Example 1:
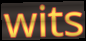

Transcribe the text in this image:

wits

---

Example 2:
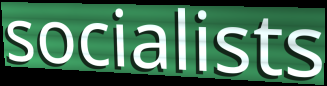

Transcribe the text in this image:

socialists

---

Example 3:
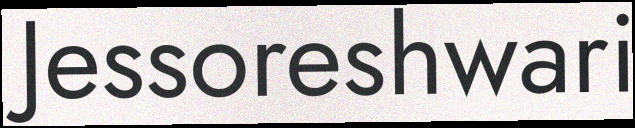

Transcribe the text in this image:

Jessoreshwari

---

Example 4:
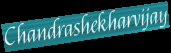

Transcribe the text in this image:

Chandrashekharvijay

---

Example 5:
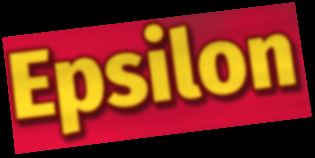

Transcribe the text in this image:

Epsilon